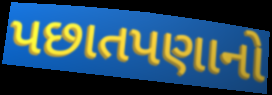
પછાતપણાનો